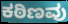
ಕಠಿಣವು